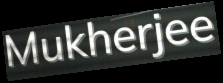
Mukherjee